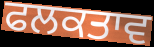
ਫਲਕਤਾਵ